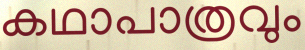
കഥാപാത്രവും